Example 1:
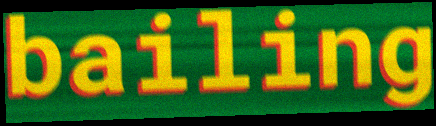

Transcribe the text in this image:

bailing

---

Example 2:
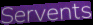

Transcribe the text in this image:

Servents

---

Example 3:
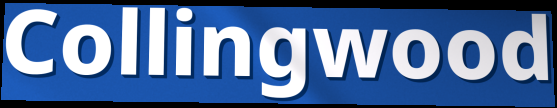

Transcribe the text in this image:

Collingwood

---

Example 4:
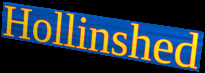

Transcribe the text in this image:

Hollinshed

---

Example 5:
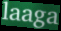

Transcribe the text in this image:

laaga